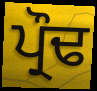
ਪ੍ਰੌਢ